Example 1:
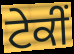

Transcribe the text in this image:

ਟੇਕੀਂ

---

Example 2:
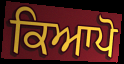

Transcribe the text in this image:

ਕਿਆਪੋ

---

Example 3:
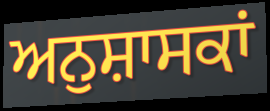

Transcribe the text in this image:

ਅਨੁਸ਼ਾਸਕਾਂ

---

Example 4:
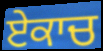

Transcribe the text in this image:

ਏਕਾਚ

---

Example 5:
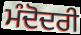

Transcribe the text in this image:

ਮੰਦੋਦਰੀ